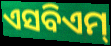
ଏସବିଏମ୍